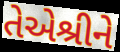
તેએશ્રીને